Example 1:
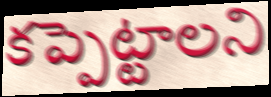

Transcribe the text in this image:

కప్పెట్టాలని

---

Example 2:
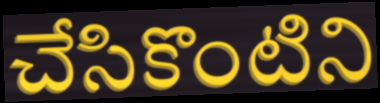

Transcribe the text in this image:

చేసికొంటిని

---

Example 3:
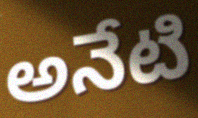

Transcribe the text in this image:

అనేటి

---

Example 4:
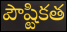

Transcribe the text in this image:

పౌష్టికత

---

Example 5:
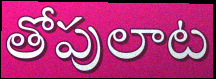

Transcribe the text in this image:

తోపులాట